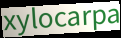
xylocarpa